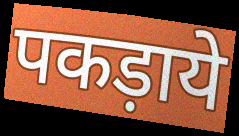
पकड़ाये